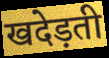
खदेड़ती